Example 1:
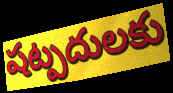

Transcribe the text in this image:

షట్పదులకు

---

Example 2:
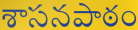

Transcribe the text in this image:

శాసనపాఠం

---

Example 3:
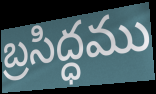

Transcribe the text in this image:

బ్రసిద్ధము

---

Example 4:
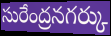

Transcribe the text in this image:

సురేంద్రనగర్కు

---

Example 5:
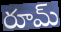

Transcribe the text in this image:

రూమ్